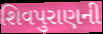
શિવપુરાણની